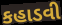
કહાડવી